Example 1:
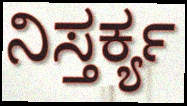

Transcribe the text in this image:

ನಿಸ್ತರ್ಕ್ಯ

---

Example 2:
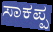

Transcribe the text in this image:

ಸಾಕಪ್ಪ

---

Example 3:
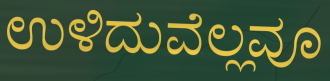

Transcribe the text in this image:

ಉಳಿದುವೆಲ್ಲವೂ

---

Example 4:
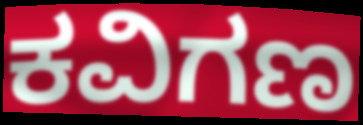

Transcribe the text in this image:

ಕವಿಗಣ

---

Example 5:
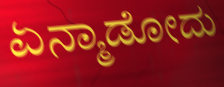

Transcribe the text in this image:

ಏನ್ಮಾಡೋದು